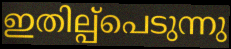
ഇതില്പ്പെടുന്നു